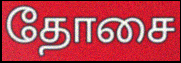
தோசை